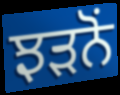
ਝੜਨੋਂ